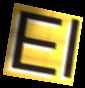
El